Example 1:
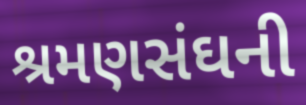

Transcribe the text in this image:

શ્રમણસંઘની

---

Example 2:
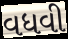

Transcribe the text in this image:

વધવી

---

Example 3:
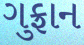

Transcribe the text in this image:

ગુફ્રાન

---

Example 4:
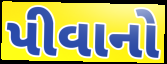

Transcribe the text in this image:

પીવાનો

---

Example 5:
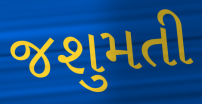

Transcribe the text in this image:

જશુમતી